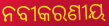
ନବୀକରଣୀୟ